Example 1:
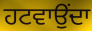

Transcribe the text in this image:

ਹਟਵਾਉਂਦਾ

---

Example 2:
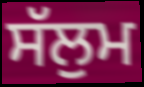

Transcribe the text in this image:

ਸੱਲੁਮ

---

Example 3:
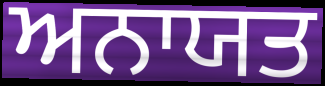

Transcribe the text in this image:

ਅਨਾਯਤ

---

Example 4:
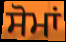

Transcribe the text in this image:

ਸੋਮਾਂ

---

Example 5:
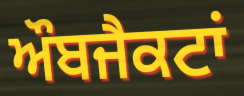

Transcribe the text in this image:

ਔਬਜੈਕਟਾਂ